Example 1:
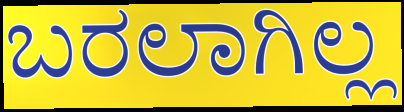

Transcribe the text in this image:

ಬರಲಾಗಿಲ್ಲ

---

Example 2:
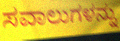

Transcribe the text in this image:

ಸವಾಲುಗಳನ್ನು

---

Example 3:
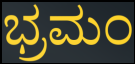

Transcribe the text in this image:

ಭ್ರಮಂ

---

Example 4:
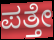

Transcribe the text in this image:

ಪತ್ತೇ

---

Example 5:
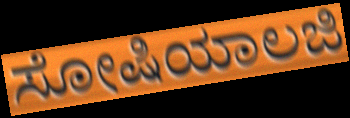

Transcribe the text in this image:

ಸೋಷಿಯಾಲಜಿ